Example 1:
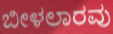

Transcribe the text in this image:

ಬೀಳಲಾರವು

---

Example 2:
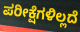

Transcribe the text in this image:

ಪರೀಕ್ಷೆಗಳಿಲ್ಲದೆ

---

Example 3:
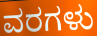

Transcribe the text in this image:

ವರಗಳು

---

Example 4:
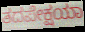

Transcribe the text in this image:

ತದಪೇಕ್ಷಯಾ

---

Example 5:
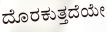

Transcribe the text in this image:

ದೊರಕುತ್ತದೆಯೇ